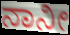
ನಾನೀ